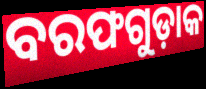
ବରଫଗୁଡ଼ାକ